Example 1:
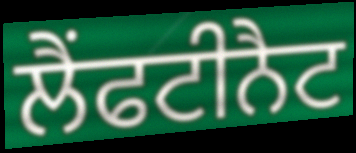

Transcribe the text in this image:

ਲੈਂਫਟੀਨੈਟ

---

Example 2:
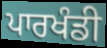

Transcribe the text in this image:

ਪਾਰਖੰਡੀ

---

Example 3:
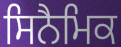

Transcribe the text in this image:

ਸਿਨੈਮਿਕ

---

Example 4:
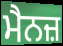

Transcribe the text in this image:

ਮੈਨਜ਼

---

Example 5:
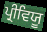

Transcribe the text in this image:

ਪ੍ਰੀਵਿਯੂ